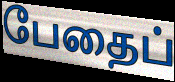
பேதைப்